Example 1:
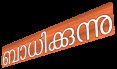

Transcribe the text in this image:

ബാധിക്കുന്നു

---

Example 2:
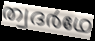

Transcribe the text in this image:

ത്വദർഥേ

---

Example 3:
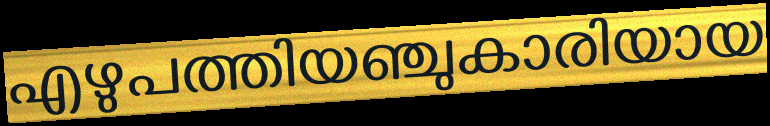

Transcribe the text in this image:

എഴുപത്തിയഞ്ചുകാരിയായ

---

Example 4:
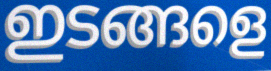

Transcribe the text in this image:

ഇടങ്ങളെ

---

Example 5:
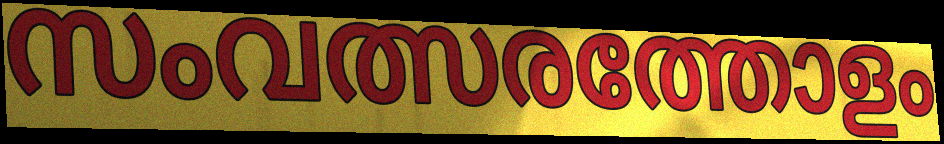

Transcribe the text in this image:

സംവത്സരത്തോളം